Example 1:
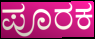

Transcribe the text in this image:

ಪೂರಕ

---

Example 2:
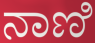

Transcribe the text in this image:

ನಾಣಿ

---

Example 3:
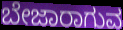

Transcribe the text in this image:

ಬೇಜಾರಾಗುವ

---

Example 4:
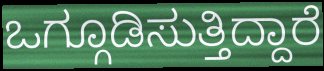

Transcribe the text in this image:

ಒಗ್ಗೂಡಿಸುತ್ತಿದ್ದಾರೆ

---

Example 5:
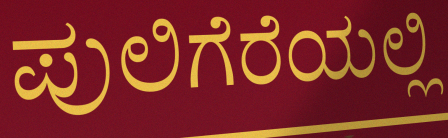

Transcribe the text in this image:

ಪುಲಿಗೆರೆಯಲ್ಲಿ